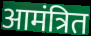
आमंत्रित